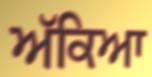
ਅੱਕਿਆ